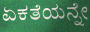
ಏಕತೆಯನ್ನೇ